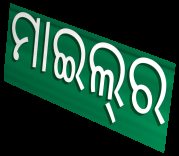
ମାଇଲ୍‍ର